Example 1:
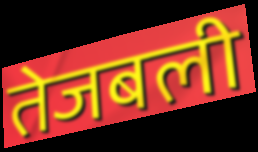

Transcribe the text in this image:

तेजबली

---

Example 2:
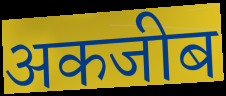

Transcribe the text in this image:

अकजीब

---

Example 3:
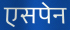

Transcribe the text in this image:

एसपेन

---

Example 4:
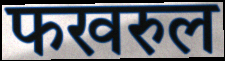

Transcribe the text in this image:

फखरुल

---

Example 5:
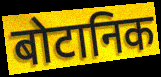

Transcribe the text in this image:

बोटानिक